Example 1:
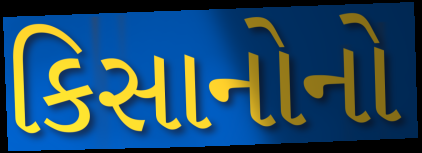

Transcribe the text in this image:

કિસાનોનો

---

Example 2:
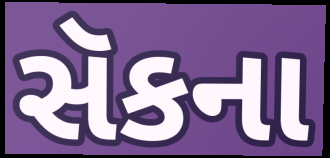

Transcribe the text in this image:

સૅકના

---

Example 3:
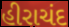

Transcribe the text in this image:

હીરાચંદ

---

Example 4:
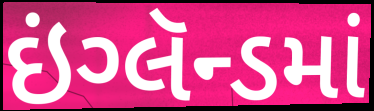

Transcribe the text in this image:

ઇંગ્લૅન્ડમાં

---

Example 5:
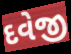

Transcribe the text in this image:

દવેજી